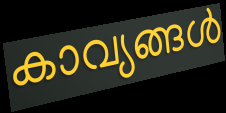
കാവ്യങ്ങൾ